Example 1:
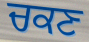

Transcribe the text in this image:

ਚਕਣ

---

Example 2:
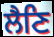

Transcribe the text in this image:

ਲੈਣਿ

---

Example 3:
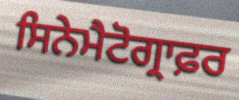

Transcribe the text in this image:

ਸਿਨੇਮੈਟੋਗ੍ਰਾਫ਼ਰ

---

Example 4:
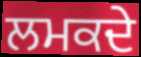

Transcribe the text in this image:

ਲਮਕਦੇ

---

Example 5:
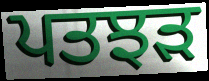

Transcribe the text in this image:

ਪਤਝਡ਼